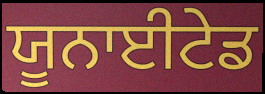
ਯੂਨਾਈਟੇਡ